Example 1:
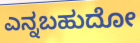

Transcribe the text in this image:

ಎನ್ನಬಹುದೋ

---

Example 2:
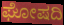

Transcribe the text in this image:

ಘೋಷದಿ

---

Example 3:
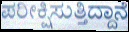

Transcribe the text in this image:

ಪರೀಕ್ಷಿಸುತ್ತಿದ್ದಾನೆ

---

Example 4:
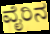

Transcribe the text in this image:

ವೈರಿನ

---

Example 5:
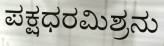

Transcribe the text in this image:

ಪಕ್ಷಧರಮಿಶ್ರನು